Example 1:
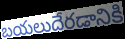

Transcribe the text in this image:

బయలుదేరడానికి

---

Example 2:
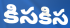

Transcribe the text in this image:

కిసకిస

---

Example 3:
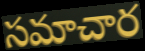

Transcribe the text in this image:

సమాచార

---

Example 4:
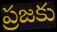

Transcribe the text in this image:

ప్రజకు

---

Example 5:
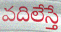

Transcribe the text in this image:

వదిలేస్తే